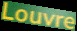
Louvre